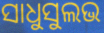
ସାଧୁସୁଲଭ